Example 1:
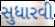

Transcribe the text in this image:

સુધારવી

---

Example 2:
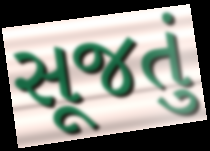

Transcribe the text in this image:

સૂજતું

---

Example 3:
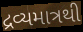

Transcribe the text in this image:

દ્રવ્યમાત્રથી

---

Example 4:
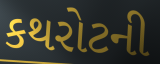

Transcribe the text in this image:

કથરોટની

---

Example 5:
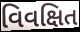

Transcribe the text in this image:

વિવક્ષિત